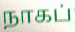
நாகப்